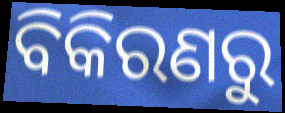
ବିକିରଣରୁ